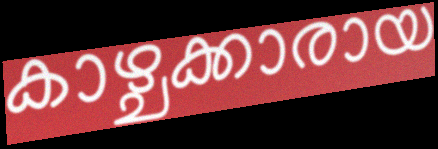
കാഴ്ചക്കാരായ